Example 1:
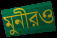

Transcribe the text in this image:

মুনীরও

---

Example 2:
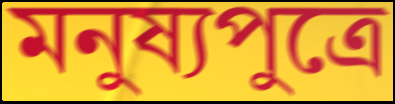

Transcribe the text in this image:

মনুষ্যপুত্রে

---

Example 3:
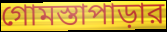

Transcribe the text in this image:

গোমস্তাপাড়ার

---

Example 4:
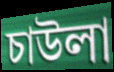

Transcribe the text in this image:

চাউলা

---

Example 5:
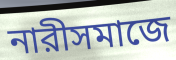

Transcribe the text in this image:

নারীসমাজে